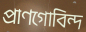
প্রাণগোবিন্দ